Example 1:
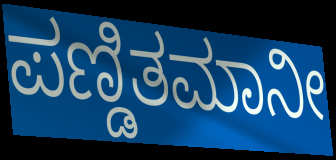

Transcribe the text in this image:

ಪಣ್ಡಿತಮಾನೀ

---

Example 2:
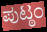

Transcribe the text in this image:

ಪುಟ್ಠಂ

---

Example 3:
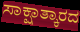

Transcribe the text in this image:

ಸಾಕ್ಷಾತ್ಕಾರದ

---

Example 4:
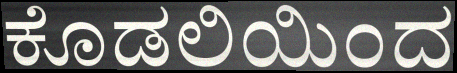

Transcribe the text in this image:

ಕೊಡಲಿಯಿಂದ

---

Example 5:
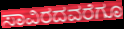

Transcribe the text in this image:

ಸಾವಿರದವರೆಗೂ